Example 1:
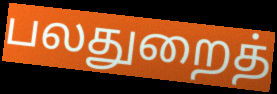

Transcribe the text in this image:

பலதுறைத்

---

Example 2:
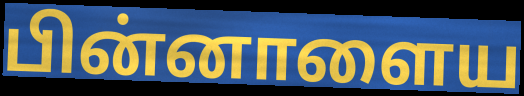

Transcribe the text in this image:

பின்னாளைய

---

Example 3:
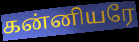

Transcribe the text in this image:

கன்னியரே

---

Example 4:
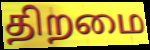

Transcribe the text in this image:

திறமை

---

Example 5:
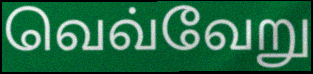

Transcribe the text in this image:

வெவ்வேறு